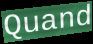
Quand